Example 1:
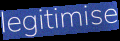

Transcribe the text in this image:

legitimise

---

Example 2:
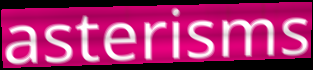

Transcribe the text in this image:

asterisms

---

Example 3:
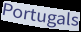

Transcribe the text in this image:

Portugals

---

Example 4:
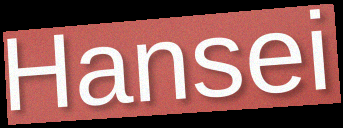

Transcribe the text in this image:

Hansei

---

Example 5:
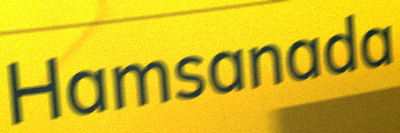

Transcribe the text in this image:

Hamsanada